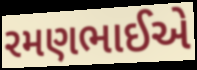
રમણભાઈએ